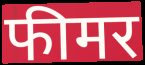
फीमर